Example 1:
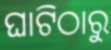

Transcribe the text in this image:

ଘାଟିଠାରୁ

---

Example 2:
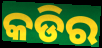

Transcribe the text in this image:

କଡିର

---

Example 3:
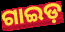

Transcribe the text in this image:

ଗାଇଡ଼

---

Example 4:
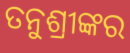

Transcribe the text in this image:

ତନୁଶ୍ରୀଙ୍କର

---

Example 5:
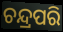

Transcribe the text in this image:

ଚନ୍ଦ୍ରପରି